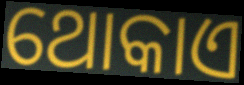
ଥୋକାଏ